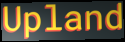
Upland